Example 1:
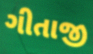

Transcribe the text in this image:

ગીતાજી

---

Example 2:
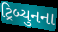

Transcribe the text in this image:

ટ્રિબ્યુનના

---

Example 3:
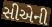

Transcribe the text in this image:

સીએની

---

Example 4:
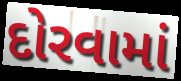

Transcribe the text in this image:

દોરવામાં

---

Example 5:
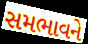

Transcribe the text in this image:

સમભાવને